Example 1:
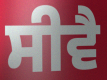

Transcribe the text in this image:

ਸੀਵੈ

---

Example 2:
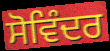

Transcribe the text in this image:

ਸੋਵਿੰਦਰ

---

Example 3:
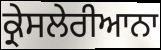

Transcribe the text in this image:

ਕ੍ਰੇਸਲੇਰੀਆਨਾ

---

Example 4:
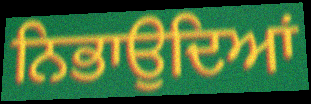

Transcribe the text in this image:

ਨਿਭਾਉਦਿਆਂ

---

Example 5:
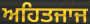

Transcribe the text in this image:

ਅਹਿਤਜਾਜ